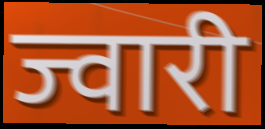
ज्वारी